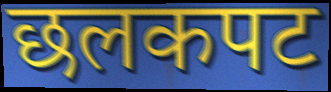
छलकपट